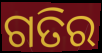
ଗତିର